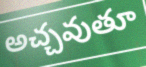
అచ్చవుతూ